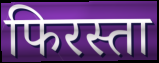
फिरस्ता